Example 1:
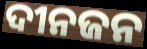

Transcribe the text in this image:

ଦୀନଜନ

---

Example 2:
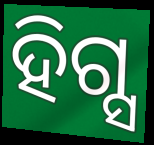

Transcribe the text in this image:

ହିଗ୍ସ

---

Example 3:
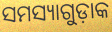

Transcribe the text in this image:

ସମସ୍ୟାଗୁଡ଼ାକ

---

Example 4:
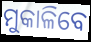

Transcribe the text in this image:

ମୁକାଳିବେ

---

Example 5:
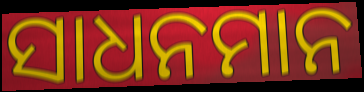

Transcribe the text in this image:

ସାଧନମାନ